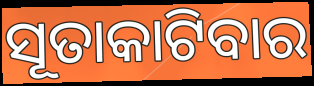
ସୂତାକାଟିବାର